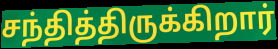
சந்தித்திருக்கிறார்